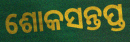
ଶୋକସନ୍ତପ୍ତ